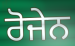
ਰੋਜੇਨ